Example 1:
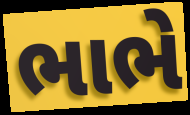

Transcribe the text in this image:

ભાભે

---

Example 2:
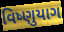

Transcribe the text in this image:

વિષ્ણુયાગ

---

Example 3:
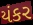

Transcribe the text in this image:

યંકર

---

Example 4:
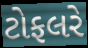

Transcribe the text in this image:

ટોફલરે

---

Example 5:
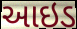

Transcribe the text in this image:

આઇડ